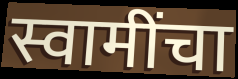
स्वामींचा